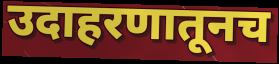
उदाहरणातूनच